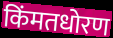
किंमतधोरण